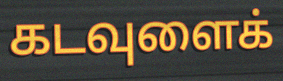
கடவுளைக்